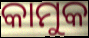
କାମୁକ